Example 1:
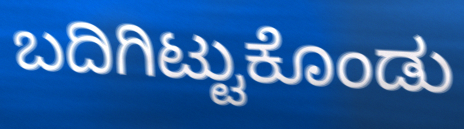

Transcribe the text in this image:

ಬದಿಗಿಟ್ಟುಕೊಂಡು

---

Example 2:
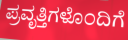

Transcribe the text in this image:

ಪ್ರವೃತ್ತಿಗಳೊಂದಿಗೆ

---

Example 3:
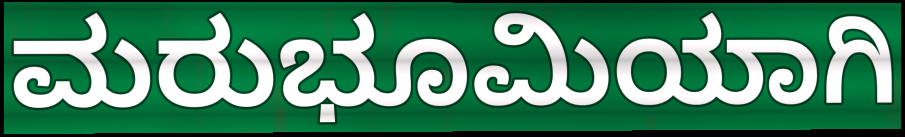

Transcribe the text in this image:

ಮರುಭೂಮಿಯಾಗಿ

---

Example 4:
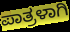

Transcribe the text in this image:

ಪಾತ್ರಳಾಗಿ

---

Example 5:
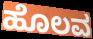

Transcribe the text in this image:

ಹೊಲವ